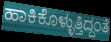
ಹಾಕಿಕೊಳ್ಳುತ್ತಿದ್ದಂತೆ